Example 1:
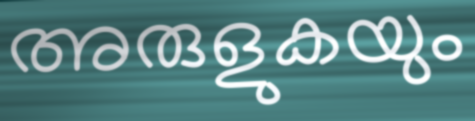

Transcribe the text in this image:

അരുളുകയും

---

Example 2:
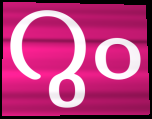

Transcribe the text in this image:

റും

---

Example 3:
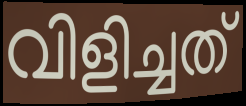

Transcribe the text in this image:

വിളിച്ചത്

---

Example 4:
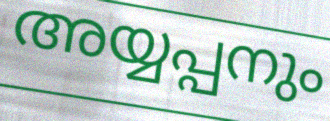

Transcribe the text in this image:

അയ്യപ്പനും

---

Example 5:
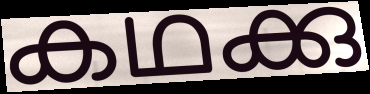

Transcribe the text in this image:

കഥക്കു